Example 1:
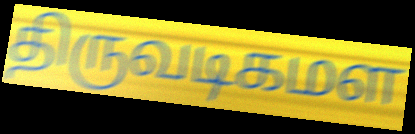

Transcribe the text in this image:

திருவடிகமள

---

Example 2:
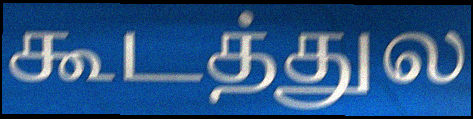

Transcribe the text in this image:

கூடத்துல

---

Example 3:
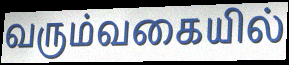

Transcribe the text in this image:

வரும்வகையில்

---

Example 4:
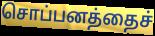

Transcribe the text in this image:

சொப்பனத்தைச்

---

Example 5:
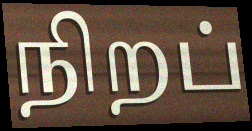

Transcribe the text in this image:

நிறப்